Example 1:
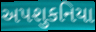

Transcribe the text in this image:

અપશુકનિયા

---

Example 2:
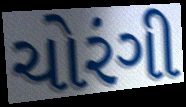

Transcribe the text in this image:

ચોરંગી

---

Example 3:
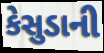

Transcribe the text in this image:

કેસુડાની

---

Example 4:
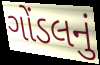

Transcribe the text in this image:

ગોંડલનું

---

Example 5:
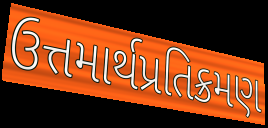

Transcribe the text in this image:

ઉત્તમાર્થપ્રતિક્રમણ